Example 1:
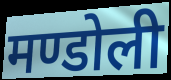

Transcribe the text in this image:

मण्डोली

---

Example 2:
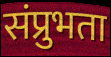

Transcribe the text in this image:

संप्रुभता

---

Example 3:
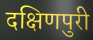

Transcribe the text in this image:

दक्षिणपुरी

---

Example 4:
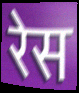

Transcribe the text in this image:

रेस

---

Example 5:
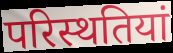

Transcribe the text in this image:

परिस्थतियां